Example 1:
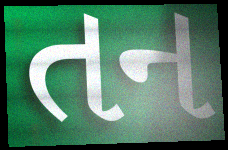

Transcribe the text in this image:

તન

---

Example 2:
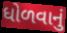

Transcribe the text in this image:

ધોળવાનું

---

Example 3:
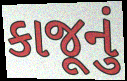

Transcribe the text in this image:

કાજૂનું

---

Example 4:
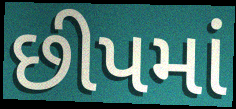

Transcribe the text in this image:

છીપમાં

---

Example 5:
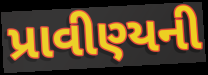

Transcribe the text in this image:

પ્રાવીણ્યની